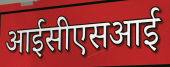
आईसीएसआई